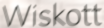
Wiskott